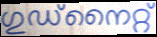
ഗുഡ്നൈറ്റ്